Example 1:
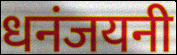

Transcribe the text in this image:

धनंजयनी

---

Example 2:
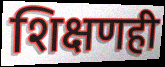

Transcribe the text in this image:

शिक्षणही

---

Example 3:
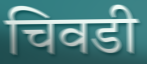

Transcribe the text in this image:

चिवडी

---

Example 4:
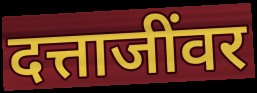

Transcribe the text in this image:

दत्ताजींवर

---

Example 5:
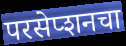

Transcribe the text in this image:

परसेप्शनचा